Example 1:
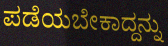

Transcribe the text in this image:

ಪಡೆಯಬೇಕಾದ್ದನ್ನು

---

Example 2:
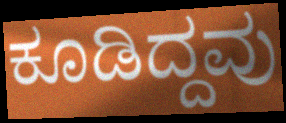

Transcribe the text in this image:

ಕೂಡಿದ್ದವು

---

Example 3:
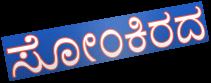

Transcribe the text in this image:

ಸೋಂಕಿರದ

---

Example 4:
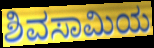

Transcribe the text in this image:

ಶಿವಸಾಮಿಯ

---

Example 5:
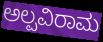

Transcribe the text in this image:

ಅಲ್ಪವಿರಾಮ